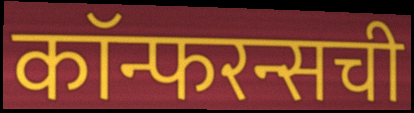
कॉन्फरन्सची